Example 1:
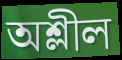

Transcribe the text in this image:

অশ্লীল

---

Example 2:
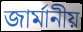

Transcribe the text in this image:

জার্মানীয়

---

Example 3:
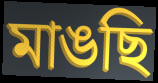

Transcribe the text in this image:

মাঙছি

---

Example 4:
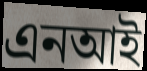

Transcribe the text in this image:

এনআই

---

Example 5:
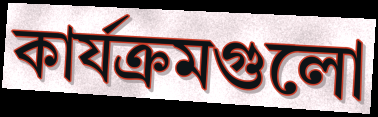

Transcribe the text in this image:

কার্যক্রমগুলো